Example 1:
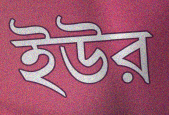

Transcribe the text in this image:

ইউর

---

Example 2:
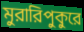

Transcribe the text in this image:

মুরারিপুকুরে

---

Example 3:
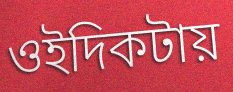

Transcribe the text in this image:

ওইদিকটায়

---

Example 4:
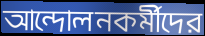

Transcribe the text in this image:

আন্দোলনকর্মীদের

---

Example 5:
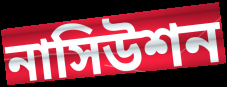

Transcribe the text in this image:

নাসিউশন